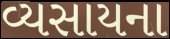
વ્યસાયના